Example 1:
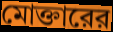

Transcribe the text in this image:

মোক্তারের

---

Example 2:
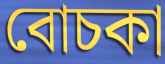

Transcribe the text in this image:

বোচকা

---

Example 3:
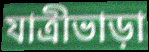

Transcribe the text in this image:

যাত্রীভাড়া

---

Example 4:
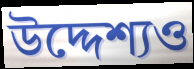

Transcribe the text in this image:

উদ্দেশ্যও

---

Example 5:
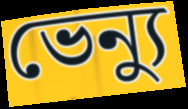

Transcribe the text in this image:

ভেন্যু